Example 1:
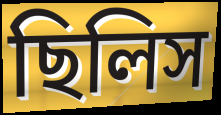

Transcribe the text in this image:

ছিলিস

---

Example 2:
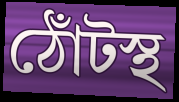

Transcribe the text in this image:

ঠোঁটস্থ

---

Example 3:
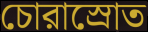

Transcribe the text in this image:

চোরাস্রোত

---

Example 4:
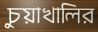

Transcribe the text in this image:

চুয়াখালির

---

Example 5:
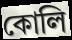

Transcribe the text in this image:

কোলি